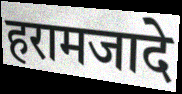
हरामजादे